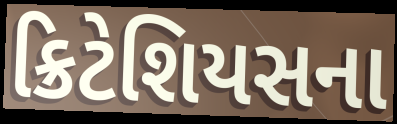
ક્રિટેશિયસના